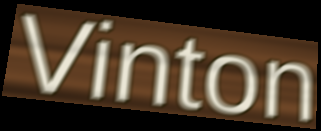
Vinton